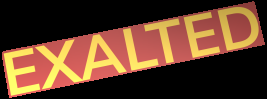
EXALTED